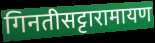
गिनतीसट्टारामायण